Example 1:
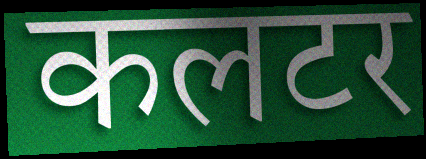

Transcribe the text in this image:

कलटर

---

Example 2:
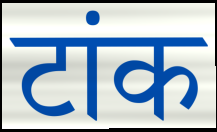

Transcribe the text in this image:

टांक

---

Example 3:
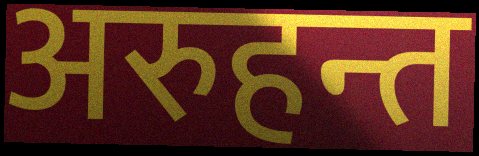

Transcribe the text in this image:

अरुहन्त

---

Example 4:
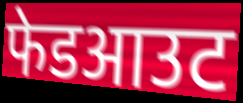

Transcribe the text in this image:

फेडआउट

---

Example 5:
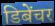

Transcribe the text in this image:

डिबेंचर